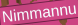
Nimmannu